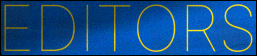
EDITORS